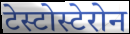
टेस्टोस्टेरोन